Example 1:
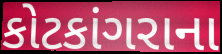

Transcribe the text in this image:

કોટકાંગરાના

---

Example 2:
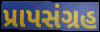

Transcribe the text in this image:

પ્રાપસંગ્રહ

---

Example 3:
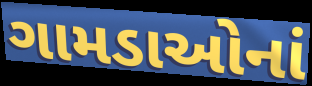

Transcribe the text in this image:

ગામડાઓનાં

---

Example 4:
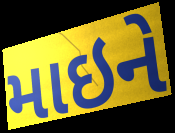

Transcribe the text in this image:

માઇને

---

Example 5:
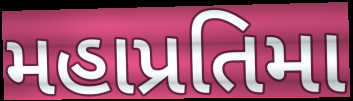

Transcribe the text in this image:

મહાપ્રતિમા